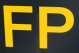
FP